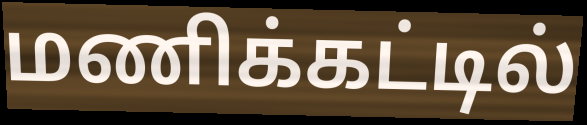
மணிக்கட்டில்